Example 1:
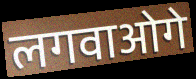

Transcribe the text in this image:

लगवाओगे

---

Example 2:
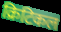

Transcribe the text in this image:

क्रिटिकल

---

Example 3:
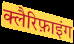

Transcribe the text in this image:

क्लैरिफ़ाइंग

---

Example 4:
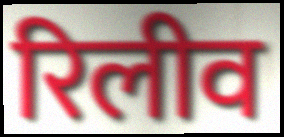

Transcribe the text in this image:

रिलीव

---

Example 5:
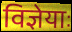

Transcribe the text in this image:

विज्ञेयाः